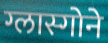
ग्लास्गोने